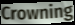
Crowning